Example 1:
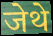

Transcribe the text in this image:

जेथे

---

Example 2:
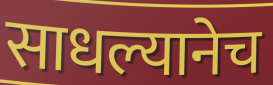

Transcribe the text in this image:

साधल्यानेच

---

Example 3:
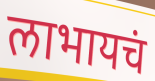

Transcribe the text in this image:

लाभायचं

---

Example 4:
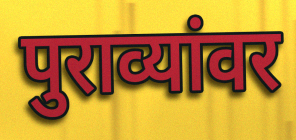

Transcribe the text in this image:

पुराव्यांवर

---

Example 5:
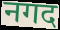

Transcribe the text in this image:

नगद